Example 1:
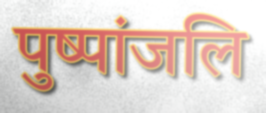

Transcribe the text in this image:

पुष्‍पांजलि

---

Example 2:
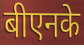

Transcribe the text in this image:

बीएनके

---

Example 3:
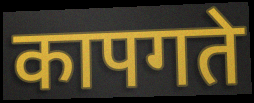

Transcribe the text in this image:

कापगते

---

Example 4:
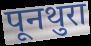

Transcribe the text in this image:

पूनथुरा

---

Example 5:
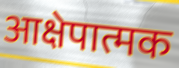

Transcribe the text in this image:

आक्षेपात्मक